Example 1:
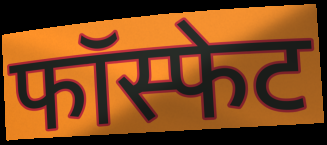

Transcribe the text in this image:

फॉस्फेट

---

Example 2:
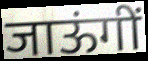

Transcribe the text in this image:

जाऊंगीं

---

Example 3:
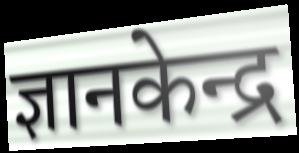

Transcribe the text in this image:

ज्ञानकेन्द्र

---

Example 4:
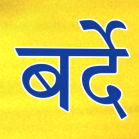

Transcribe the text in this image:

बर्दे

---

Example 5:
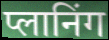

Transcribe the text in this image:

प्लानिंग